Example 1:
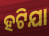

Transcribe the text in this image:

ହଟିଯା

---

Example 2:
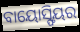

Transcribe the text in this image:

ବାୟୋସ୍ଫିୟର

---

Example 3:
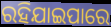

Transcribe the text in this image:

ରହିଯାଇପାରେ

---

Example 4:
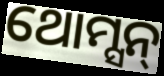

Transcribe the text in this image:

ଥୋମ୍ସନ୍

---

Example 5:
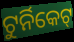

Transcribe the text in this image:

ଟୁର୍ନିକେଟ୍